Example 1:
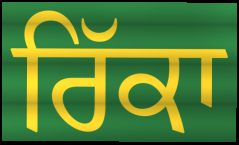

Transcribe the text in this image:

ਰਿੱਕਾ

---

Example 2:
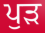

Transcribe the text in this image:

ਪੁੜ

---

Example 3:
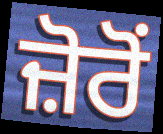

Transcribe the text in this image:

ਜ਼ੋਰੋਂ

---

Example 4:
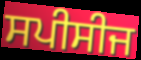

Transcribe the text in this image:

ਸਪੀਸੀਜ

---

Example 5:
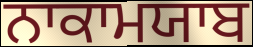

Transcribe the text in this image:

ਨਾਕਾਮਯਾਬ